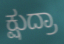
ಕ್ಷುದ್ರಾ